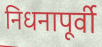
निधनापूर्वी